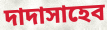
দাদাসাহেব